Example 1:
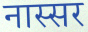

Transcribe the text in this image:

नास्सर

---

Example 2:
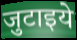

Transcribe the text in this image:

जुटाइये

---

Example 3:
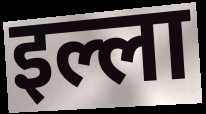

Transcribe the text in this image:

इल्ला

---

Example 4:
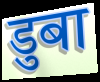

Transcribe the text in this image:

डुबा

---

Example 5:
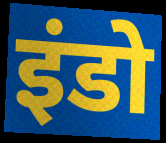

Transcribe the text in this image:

इंडो